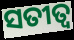
ସତୀତ୍ବ